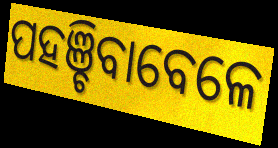
ପହଞ୍ଚିବାବେଳେ